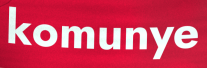
komunye